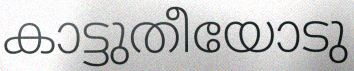
കാട്ടുതീയോടു